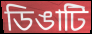
ডিঙাটি